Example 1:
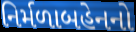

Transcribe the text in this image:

નિર્મળાબહેનનો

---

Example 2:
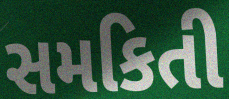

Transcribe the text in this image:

સમકિતી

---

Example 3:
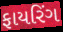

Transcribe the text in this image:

ફાયરિંગ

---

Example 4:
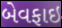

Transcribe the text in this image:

બેવફાઇ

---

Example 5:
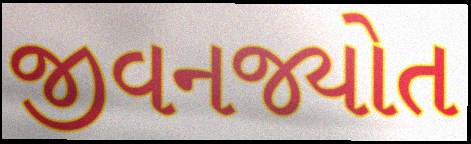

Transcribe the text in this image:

જીવનજ્યોત